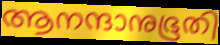
ആനന്ദാനുഭൂതി